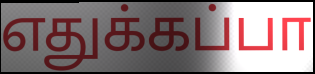
எதுக்கப்பா